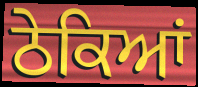
ਠੇਕਿਆਂ